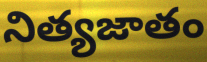
నిత్యజాతం